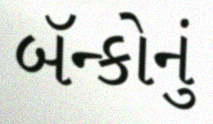
બૅન્કોનું